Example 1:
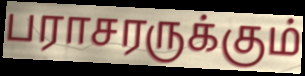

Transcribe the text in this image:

பராசரருக்கும்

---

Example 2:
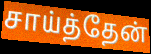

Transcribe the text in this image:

சாய்த்தேன்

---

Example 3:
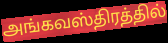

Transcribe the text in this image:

அங்கவஸ்திரத்தில்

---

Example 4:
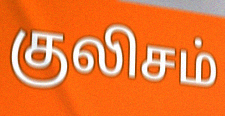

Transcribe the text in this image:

குலிசம்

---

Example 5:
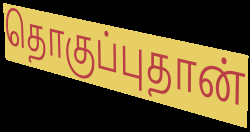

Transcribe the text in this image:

தொகுப்புதான்